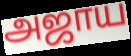
அஜாய